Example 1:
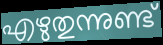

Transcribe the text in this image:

എഴുതുന്നുണ്ട്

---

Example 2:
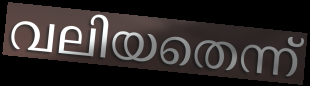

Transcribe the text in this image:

വലിയതെന്ന്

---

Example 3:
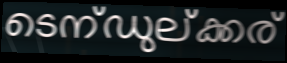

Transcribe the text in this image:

ടെന്ഡുല്ക്കര്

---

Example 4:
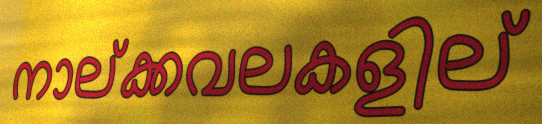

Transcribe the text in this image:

നാല്ക്കവലകളില്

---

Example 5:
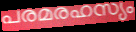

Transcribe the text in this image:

പരമരഹസ്യം